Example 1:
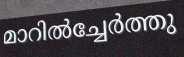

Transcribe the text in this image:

മാറിൽച്ചേർത്തു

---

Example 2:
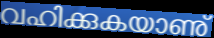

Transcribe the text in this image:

വഹിക്കുകയാണു്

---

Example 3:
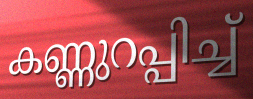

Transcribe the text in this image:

കണ്ണുറപ്പിച്ച്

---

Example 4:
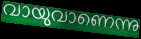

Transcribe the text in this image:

വായുവാണെന്നു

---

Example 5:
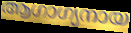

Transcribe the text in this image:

ആഗാഗ്യനായ